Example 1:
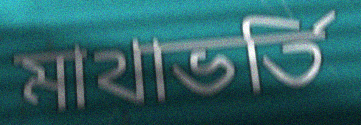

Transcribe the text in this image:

মাথাভর্তি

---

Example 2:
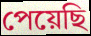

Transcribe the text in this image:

পেয়েছি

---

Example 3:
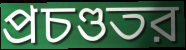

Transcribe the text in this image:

প্রচণ্ডতর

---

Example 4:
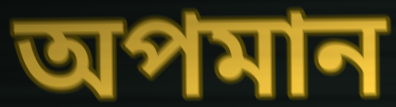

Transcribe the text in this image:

অপমান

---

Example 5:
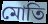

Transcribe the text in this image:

মোতি